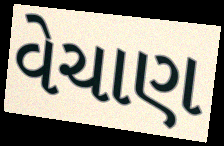
વેચાણ